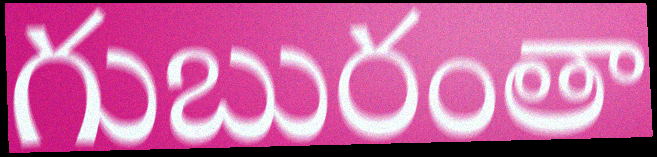
గుబురంతా